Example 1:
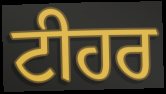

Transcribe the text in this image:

ਟੀਹਰ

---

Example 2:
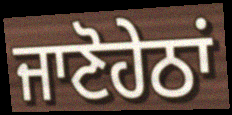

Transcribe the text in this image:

ਜਾਣੋਹੇਠਾਂ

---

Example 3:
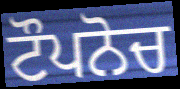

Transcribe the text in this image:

ਟੌਪਨੋਚ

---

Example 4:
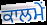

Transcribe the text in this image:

ਕਾਲਮੇਂ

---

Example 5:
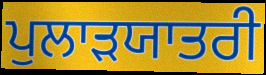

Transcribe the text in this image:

ਪੁਲਾੜਯਾਤਰੀ